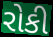
રોકી